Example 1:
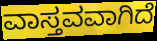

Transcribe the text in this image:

ವಾಸ್ತವವಾಗಿದೆ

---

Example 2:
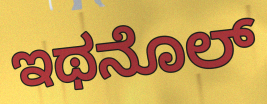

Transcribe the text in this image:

ಇಥನೊಲ್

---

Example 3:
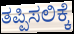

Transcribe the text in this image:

ತಪ್ಪಿಸಲಿಕ್ಕೆ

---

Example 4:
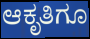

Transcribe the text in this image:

ಆಕೃತಿಗೂ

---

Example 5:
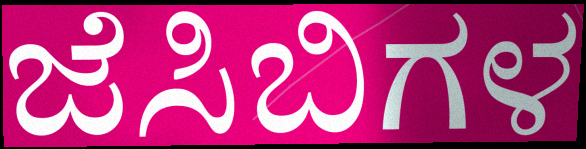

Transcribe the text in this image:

ಜೆಸಿಬಿಗಳ